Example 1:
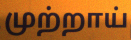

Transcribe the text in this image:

முற்றாய்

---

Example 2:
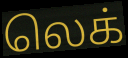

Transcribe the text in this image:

லெக்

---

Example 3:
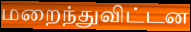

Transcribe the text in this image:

மறைந்துவிட்டன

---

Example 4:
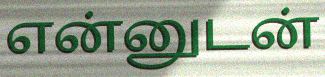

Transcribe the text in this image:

என்னுடன்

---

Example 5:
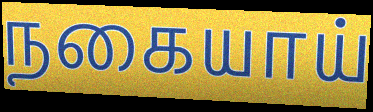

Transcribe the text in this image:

நகையாய்